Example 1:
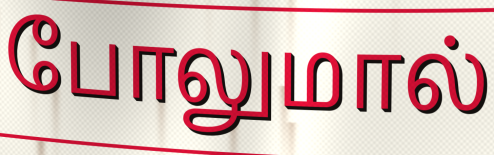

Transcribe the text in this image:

போலுமால்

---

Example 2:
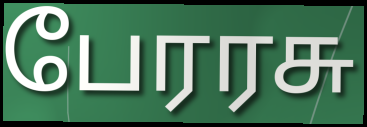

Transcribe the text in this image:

பேரரசு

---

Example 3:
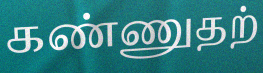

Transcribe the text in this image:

கண்ணுதற்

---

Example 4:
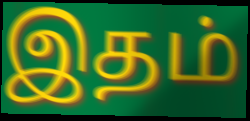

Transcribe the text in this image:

இதம்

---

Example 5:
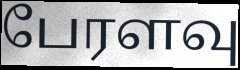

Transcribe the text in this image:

பேரளவு